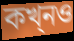
কখ্নও